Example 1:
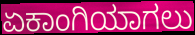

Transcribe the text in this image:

ಏಕಾಂಗಿಯಾಗಲು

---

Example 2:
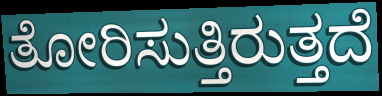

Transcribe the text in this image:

ತೋರಿಸುತ್ತಿರುತ್ತದೆ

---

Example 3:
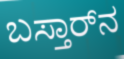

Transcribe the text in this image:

ಬಸ್ತಾರ್‌ನ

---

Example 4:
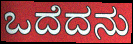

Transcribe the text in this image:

ಒದೆದನು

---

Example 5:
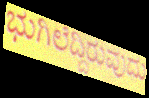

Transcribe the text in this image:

ಭುಗಿಲೆದ್ದಿರುವುದು